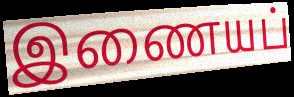
இணையப்